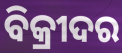
ବିକ୍ରୀଦର